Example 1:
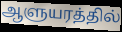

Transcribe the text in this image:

ஆளுயரத்தில்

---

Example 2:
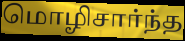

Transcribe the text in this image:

மொழிசார்ந்த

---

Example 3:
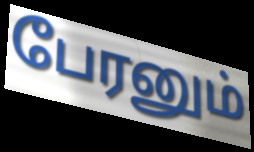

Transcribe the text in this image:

பேரனும்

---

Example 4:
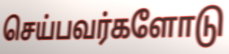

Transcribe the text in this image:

செய்பவர்களோடு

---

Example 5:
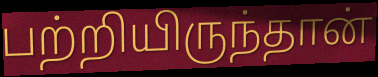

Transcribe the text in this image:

பற்றியிருந்தான்